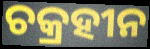
ଚକ୍ରହୀନ